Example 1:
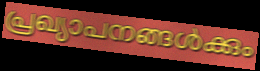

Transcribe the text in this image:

പ്രഖ്യാപനങ്ങൾക്കും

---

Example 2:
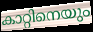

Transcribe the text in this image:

കാറ്റിനെയും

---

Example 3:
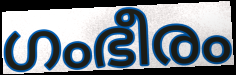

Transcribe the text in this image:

ഗംഭീരം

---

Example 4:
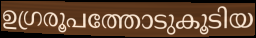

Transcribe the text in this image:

ഉഗ്രരൂപത്തോടുകൂടിയ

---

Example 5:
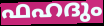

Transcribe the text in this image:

ഫഹദും